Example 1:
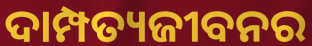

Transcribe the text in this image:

ଦାମ୍ପତ୍ୟଜୀବନର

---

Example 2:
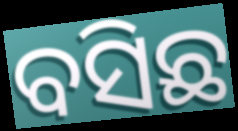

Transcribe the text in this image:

ବସିଛ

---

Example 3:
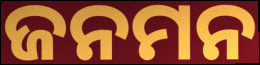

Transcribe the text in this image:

ଜନମନ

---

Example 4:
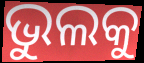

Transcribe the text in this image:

ଭୁଲକୁ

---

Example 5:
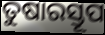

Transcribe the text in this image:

ତୁଷାରସ୍ତୂପ